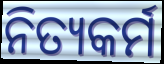
ନିତ୍ଯକର୍ମ